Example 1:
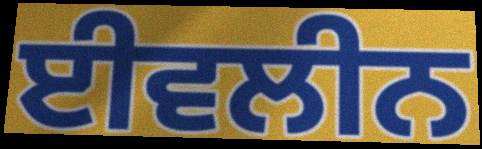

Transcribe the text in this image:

ਈਵਲੀਨ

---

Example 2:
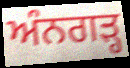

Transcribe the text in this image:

ਅੰਨਗੜ੍ਹ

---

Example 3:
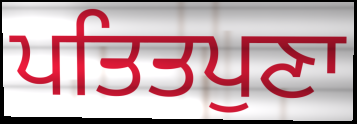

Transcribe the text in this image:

ਪਤਿਤਪੁਣਾ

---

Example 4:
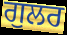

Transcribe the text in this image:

ਗੁਲਰ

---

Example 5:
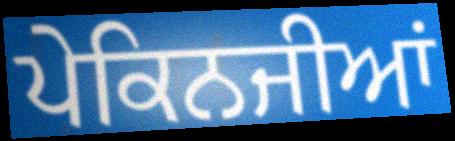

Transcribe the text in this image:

ਪੇਕਿਨਜੀਆਂ